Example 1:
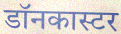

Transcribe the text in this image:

डॉनकास्टर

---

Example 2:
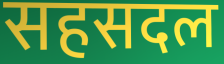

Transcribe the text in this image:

सहसदल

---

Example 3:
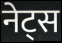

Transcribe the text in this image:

नेट्स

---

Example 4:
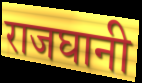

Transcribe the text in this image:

राजघानी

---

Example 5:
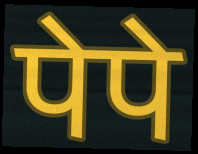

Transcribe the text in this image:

पेपे